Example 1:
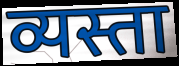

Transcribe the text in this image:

व्यस्ता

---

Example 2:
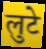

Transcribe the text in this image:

लुटे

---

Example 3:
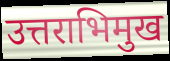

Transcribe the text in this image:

उत्तराभिमुख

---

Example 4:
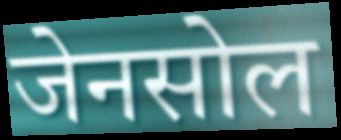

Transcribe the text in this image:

जेनसोल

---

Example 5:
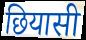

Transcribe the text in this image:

छियासी